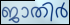
ജാതിർ